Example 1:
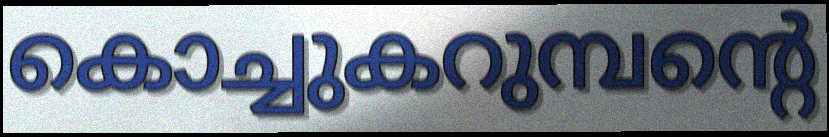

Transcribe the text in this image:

കൊച്ചുകറുമ്പന്റെ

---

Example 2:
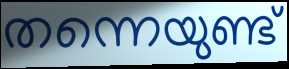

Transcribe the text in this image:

തന്നെയുണ്ട്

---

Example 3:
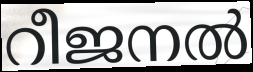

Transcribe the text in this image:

റീജനൽ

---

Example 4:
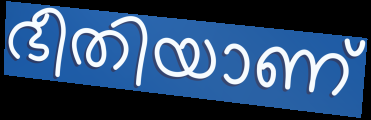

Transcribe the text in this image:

ഭീതിയാണ്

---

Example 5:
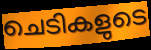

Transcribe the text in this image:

ചെടികളുടെ